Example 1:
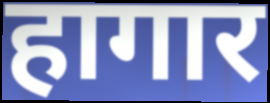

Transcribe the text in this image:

हागार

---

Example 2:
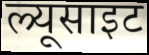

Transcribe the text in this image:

ल्यूसाइट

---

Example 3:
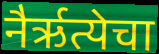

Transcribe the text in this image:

नैर्ऋत्येचा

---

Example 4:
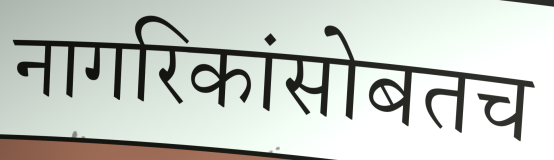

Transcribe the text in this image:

नागरिकांसोबतच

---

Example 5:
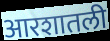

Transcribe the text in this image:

आरशातली